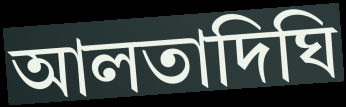
আলতাদিঘি